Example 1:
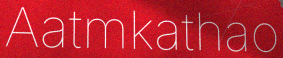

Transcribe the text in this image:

Aatmkathao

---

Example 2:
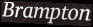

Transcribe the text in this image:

Brampton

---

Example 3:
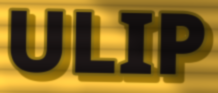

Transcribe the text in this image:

ULIP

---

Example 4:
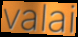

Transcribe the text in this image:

valai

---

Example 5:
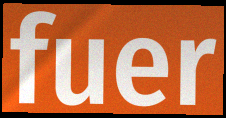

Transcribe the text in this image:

fuer